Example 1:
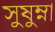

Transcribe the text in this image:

সুষুম্না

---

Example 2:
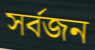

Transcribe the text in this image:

সর্বজন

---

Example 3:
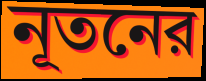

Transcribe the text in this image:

নূতনের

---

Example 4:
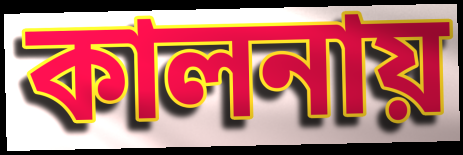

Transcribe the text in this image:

কালনায়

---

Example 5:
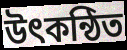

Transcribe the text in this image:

উৎকন্ঠিত